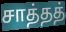
சாத்தத்